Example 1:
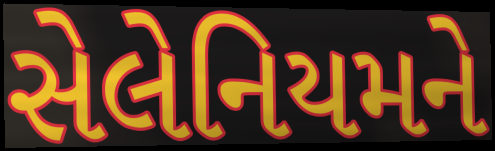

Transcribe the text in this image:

સેલેનિયમને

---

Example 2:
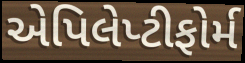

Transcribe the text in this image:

એપિલેપ્ટીફોર્મ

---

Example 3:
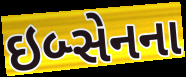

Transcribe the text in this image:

ઇબ્સેનના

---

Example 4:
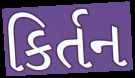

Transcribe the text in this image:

કિર્તન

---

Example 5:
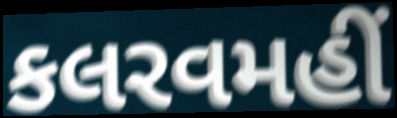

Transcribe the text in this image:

કલરવમહીં